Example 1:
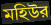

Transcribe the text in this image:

মহিউর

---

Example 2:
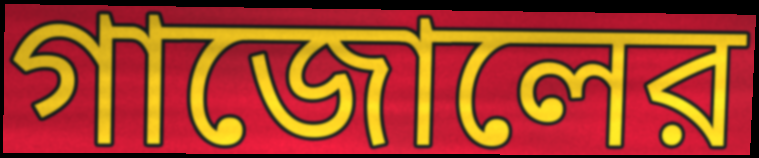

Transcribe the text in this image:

গাজোলের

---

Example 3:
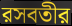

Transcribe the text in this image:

রসবতীর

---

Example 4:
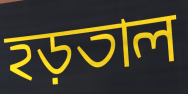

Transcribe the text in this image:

হড়তাল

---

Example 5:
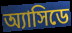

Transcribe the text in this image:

অ্যাসিডে